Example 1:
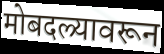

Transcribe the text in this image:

मोबदल्यावरून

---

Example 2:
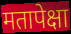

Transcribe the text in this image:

मतापेक्षा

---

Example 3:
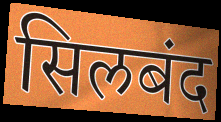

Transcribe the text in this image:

सिलबंद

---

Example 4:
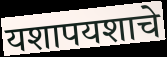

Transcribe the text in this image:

यशापयशाचे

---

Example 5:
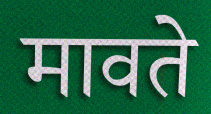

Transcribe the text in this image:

मावते